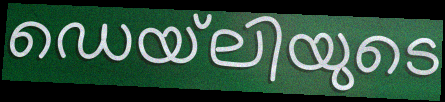
ഡെയ്‌ലിയുടെ